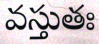
వస్తుతః